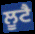
ਲੂਟੈ